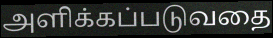
அளிக்கப்படுவதை